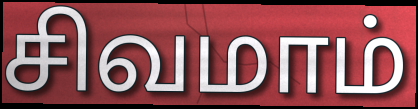
சிவமாம்